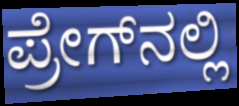
ಪ್ರೇಗ್‌ನಲ್ಲಿ